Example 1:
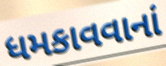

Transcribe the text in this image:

ધમકાવવાનાં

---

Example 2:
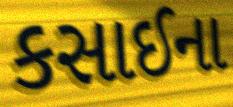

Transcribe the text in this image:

કસાઈના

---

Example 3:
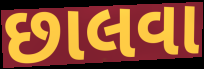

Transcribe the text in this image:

છાલવા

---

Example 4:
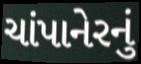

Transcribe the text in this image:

ચાંપાનેરનું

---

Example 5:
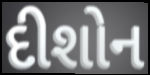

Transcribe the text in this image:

દીશોન